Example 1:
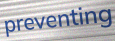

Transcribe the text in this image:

preventing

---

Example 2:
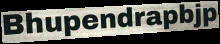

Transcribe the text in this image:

Bhupendrapbjp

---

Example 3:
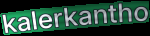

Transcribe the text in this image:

kalerkantho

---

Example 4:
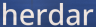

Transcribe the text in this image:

herdar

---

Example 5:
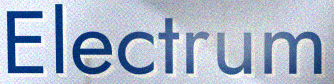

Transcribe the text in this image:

Electrum